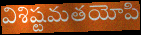
విశిష్టమతయోపి